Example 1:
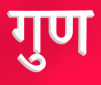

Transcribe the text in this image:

गुण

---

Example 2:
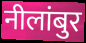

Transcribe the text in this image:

नीलांबुर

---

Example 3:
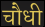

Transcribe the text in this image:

चौधी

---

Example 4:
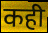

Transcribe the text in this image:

कही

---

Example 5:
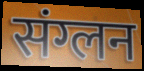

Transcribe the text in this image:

संग्लन